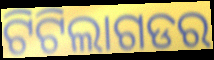
ଟିଟିଲାଗଡର